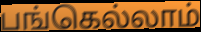
பங்கெல்லாம்